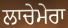
ਲਾਚੇਮੇਰਾ